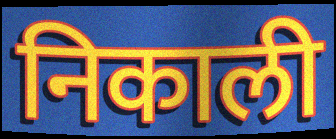
निकाली